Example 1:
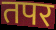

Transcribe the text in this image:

तपर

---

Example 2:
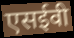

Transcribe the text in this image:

एसईवी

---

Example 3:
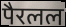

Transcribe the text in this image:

पैरलल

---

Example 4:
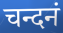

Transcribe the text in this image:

चन्दनं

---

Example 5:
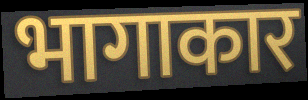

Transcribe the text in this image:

भागाकार